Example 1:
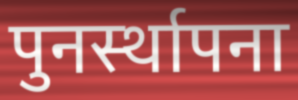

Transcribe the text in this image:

पुनर्स्थापना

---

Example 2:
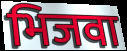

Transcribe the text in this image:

भिजवा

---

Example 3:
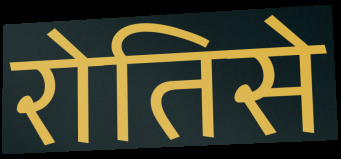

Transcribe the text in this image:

रोतिसे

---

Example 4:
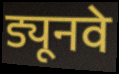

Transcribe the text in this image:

ड्यूनवे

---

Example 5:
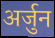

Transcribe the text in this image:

अर्जुन